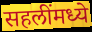
सहलींमध्ये